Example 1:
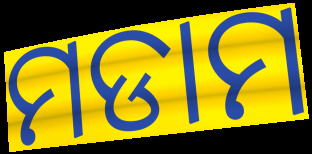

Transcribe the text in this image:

ମଡାମ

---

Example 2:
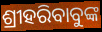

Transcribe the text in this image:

ଶ୍ରୀହରିବାବୁଙ୍କ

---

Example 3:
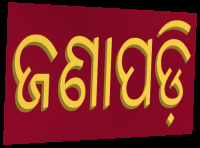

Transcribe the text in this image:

ଜଣାପଡ଼ି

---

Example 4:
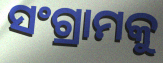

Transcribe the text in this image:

ସଂଗ୍ରାମକୁ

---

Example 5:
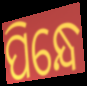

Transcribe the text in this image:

ପିନ୍ଧେ